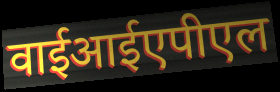
वाईआईएपीएल